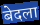
बेदला